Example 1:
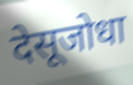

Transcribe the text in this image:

देसूजोधा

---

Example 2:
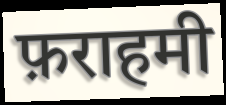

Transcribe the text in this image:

फ़राहमी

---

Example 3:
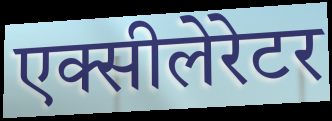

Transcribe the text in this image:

एक्सीलेरेटर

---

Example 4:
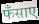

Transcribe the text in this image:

फँसाए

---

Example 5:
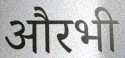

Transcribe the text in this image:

औरभी